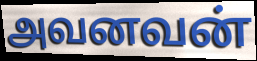
அவனவன்